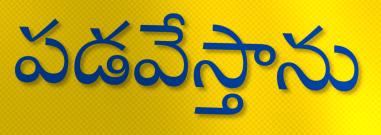
పడవేస్తాను